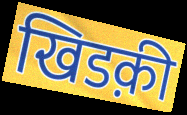
खिडक़ी